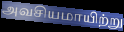
அவசியமாயிற்று